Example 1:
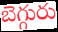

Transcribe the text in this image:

బెగ్గురు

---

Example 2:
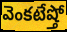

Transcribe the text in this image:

వెంకటేష్తో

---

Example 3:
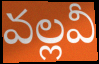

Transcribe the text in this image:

వల్లవీ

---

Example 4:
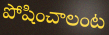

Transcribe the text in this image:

పోషించాలంట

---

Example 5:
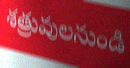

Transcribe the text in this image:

శత్రువులనుండి